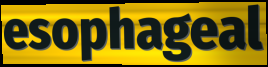
esophageal